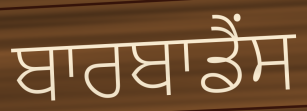
ਬਾਰਬਾਡੈਂਸ